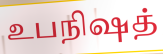
உபநிஷத்